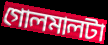
গোলমালটা